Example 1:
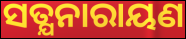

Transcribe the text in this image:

ସତ୍ଯନାରାୟଣ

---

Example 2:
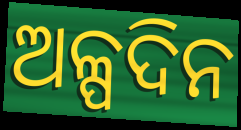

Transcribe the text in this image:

ଅଳ୍ପଦିନ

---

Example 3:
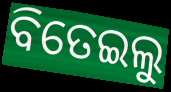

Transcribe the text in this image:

ବିତେଇଲୁ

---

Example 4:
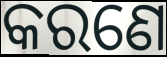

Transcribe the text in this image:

କରଣେ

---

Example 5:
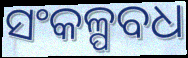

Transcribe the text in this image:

ସଂକଳ୍ପବଧ